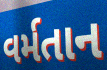
વર્મતાન